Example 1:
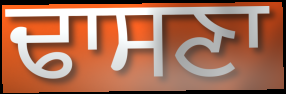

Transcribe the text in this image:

ਢਾਸਣਾ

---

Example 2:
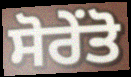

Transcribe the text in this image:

ਸੋਰੇਂਤੋ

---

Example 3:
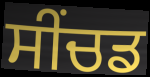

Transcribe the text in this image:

ਸੀਂਚਡ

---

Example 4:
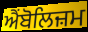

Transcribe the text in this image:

ਐਂਬੋਲਿਜ਼ਮ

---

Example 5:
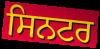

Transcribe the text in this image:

ਸਿਨਟਰ